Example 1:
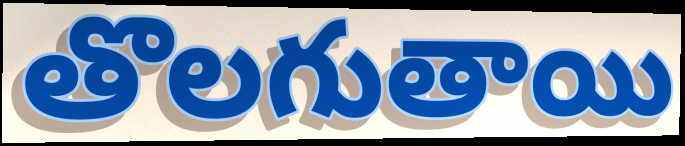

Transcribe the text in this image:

తొలగుతాయి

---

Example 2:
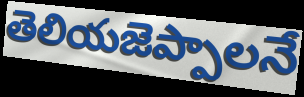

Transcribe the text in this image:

తెలియజెప్పాలనే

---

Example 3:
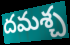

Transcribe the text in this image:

దమశ్చ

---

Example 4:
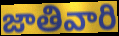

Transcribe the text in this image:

జాతివారి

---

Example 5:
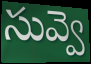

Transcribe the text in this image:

సువ్వె